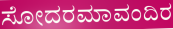
ಸೋದರಮಾವಂದಿರ